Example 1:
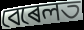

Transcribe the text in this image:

বেৰেলত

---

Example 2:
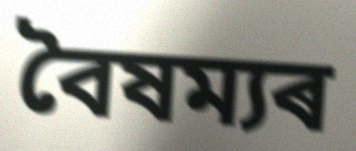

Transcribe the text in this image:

বৈষম্যৰ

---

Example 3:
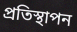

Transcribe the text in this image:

প্ৰতিস্থাপন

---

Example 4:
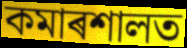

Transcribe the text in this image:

কমাৰশালত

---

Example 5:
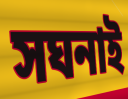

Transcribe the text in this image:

সঘনাই